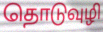
தொடுவுழி